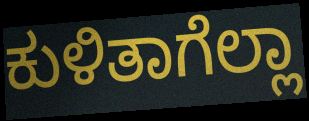
ಕುಳಿತಾಗೆಲ್ಲಾ